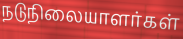
நடுநிலையாளர்கள்